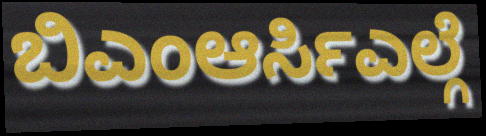
ಬಿಎಂಆರ್ಸಿಎಲ್ಗೆ